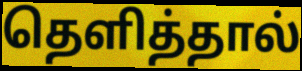
தெளித்தால்